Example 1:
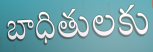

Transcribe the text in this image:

బాధితులకు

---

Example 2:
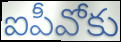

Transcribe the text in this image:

ఐపీవోకు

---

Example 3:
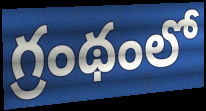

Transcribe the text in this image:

గ్రంథంలో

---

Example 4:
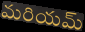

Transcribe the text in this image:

మరియమ్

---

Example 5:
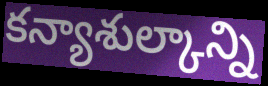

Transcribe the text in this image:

కన్యాశుల్కాన్ని